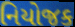
નિયોજક